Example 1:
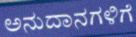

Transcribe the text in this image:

ಅನುದಾನಗಳಿಗೆ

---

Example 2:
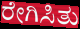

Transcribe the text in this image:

ರೇಗಿಸಿತು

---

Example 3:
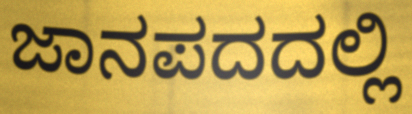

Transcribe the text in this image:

ಜಾನಪದದಲ್ಲಿ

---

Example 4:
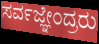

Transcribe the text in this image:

ಸರ್ವಜ್ಞೇಂದ್ರರು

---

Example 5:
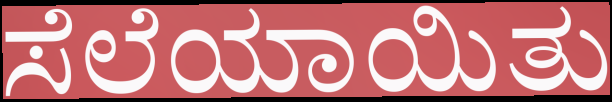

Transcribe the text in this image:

ಸೆಲೆಯಾಯಿತು